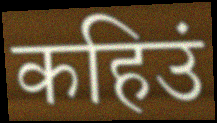
कहिउं